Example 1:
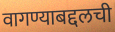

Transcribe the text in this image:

वागण्याबद्दलची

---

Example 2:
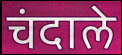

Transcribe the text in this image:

चंदाले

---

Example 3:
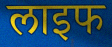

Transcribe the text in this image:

लाइफ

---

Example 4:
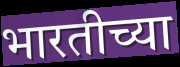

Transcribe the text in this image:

भारतीच्‍या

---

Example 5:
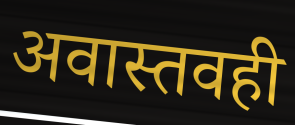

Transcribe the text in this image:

अवास्तवही